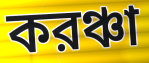
করঞ্চা